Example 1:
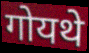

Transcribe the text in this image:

गोयथे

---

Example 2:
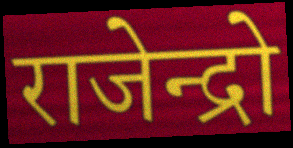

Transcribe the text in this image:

राजेन्द्रो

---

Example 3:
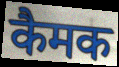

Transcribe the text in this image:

कैमक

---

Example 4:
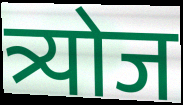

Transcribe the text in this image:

त्र्योज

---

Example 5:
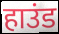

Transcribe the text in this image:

हाउंड